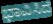
ಭಾವಿಸಿದೆ